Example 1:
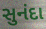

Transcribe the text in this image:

સુનંદા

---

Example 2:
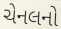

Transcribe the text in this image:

ચેનલનો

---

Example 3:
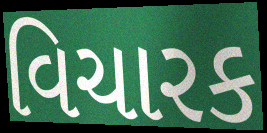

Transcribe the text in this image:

વિચારક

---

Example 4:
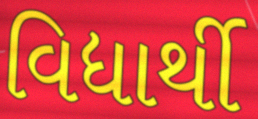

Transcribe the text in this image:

વિદ્યાર્થી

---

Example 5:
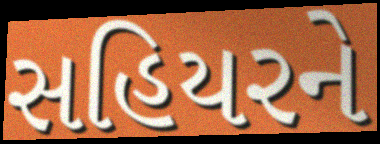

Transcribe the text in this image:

સહિયરને